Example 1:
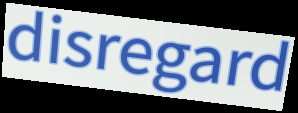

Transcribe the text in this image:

disregard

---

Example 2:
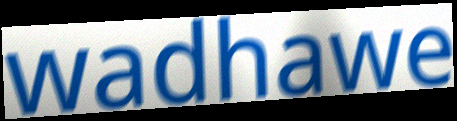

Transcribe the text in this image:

wadhawe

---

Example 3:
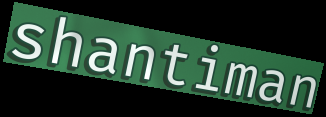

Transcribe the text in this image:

shantiman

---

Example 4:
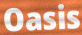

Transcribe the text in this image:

Oasis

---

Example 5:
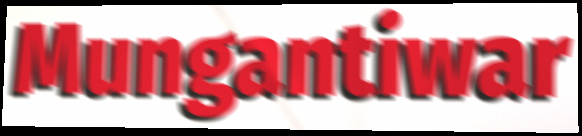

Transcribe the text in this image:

Mungantiwar